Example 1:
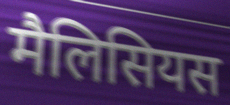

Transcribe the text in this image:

मैलिसियस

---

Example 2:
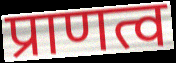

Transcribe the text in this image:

प्राणत्व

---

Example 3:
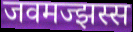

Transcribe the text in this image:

जवमज्झस्स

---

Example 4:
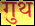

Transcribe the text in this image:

गुथ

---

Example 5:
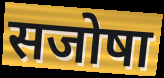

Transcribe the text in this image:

सजोषा